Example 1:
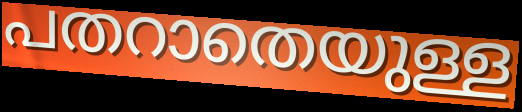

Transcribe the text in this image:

പതറാതെയുള്ള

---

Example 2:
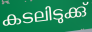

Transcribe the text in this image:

കടലിടുക്കു്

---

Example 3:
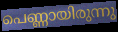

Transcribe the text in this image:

പെണ്ണായിരുന്നു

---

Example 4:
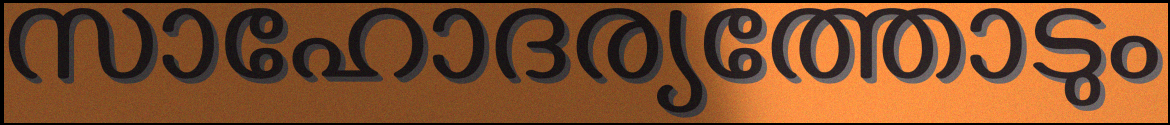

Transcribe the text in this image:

സാഹോദര്യത്തോടും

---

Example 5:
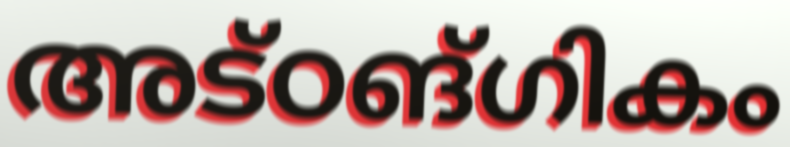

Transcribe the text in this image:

അട്ഠങ്ഗികം